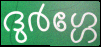
ദുർഗ്ഗേ